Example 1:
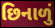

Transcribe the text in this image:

છિનાળું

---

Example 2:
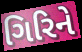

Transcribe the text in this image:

ગિરિને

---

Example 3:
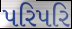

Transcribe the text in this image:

પરિપરિ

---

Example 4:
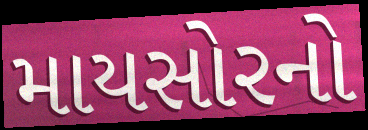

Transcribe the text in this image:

માયસોરનો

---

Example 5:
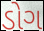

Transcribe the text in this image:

ડોગ